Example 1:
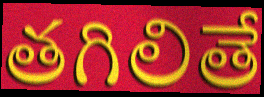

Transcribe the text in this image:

తగిలితే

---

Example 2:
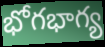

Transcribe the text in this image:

భోగభాగ్య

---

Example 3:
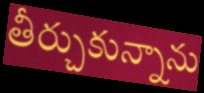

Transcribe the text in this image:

తీర్చుకున్నాను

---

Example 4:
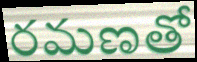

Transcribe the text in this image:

రమణతో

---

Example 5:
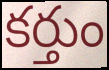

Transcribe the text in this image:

కర్తుం